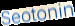
Seotonin